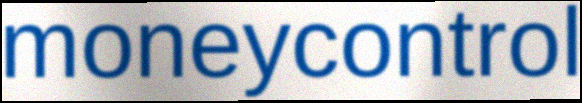
moneycontrol